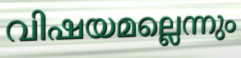
വിഷയമല്ലെന്നും